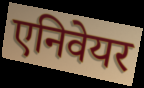
एनिवेयर